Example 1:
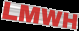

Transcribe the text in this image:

LMWH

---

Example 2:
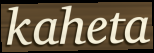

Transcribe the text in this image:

kaheta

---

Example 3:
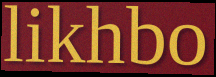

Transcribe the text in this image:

likhbo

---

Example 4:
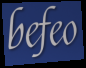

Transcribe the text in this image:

befeo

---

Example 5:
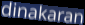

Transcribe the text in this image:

dinakaran